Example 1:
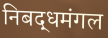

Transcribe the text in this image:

निबद्धमंगल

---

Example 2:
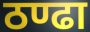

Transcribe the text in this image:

ठण्ढा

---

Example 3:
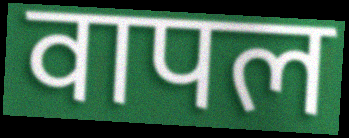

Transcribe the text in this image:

वापल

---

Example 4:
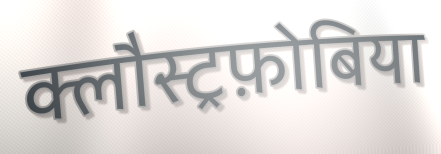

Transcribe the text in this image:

क्लौस्ट्रफ़ोबिया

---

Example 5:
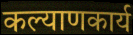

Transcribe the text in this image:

कल्याणकार्य